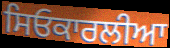
ਸਿਓਕਾਰਲੀਆ